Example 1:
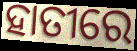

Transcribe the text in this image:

ହାତୀରେ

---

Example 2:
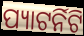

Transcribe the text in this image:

ପ୍ୟାଟର୍ନିଟି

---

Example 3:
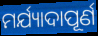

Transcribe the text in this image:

ମର୍ଯ୍ୟାଦାପୂର୍ଣ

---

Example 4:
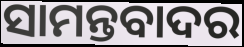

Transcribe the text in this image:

ସାମନ୍ତବାଦର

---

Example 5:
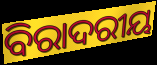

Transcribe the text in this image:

ବିରାଦରୀୟ